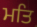
ਮਤਿ